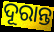
ଦୂରାନ୍ତ